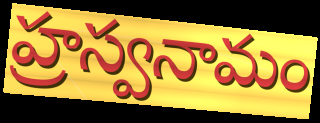
హ్రస్వనామం